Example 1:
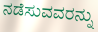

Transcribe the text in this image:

ನಡೆಸುವವರನ್ನು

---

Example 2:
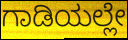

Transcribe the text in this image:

ಗಾಡಿಯಲ್ಲೇ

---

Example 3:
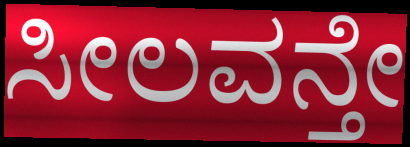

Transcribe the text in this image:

ಸೀಲವನ್ತೇ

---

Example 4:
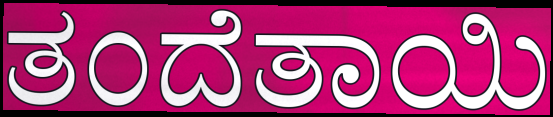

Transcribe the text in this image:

ತಂದೆತಾಯಿ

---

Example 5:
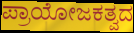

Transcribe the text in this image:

ಪ್ರಾಯೋಜಕತ್ವದ